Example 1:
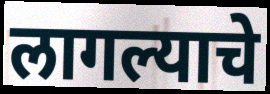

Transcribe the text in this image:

लागल्याचे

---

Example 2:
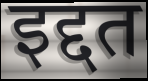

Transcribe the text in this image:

इद्दत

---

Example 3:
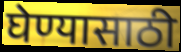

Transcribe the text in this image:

घेण्यासाठी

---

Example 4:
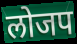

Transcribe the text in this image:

लोजप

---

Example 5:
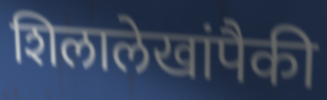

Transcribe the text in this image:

शिलालेखांपैकी